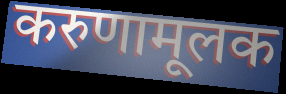
करुणामूलक